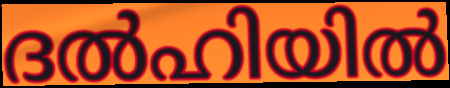
ദൽഹിയിൽ